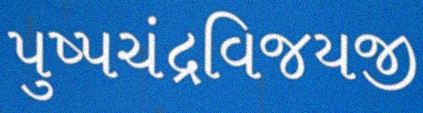
પુષ્પચંદ્રવિજયજી